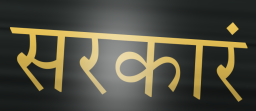
सरकारं